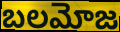
బలమోజ